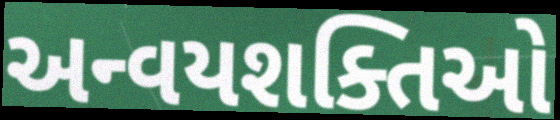
અન્વયશક્તિઓ